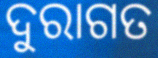
ଦୁରାଗତ